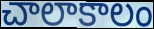
చాలాకాలం